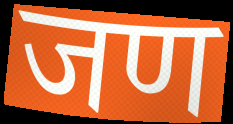
जण